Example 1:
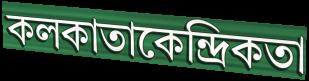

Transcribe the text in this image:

কলকাতাকেন্দ্রিকতা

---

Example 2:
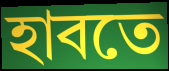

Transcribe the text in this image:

হাবতে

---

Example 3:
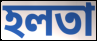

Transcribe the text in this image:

হলতা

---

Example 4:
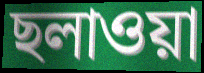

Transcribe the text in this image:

ছলাওয়া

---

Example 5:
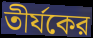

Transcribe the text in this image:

তীর্যকের